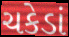
ચકેડાં